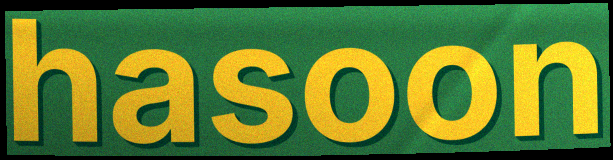
hasoon